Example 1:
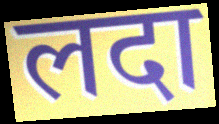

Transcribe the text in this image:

लदा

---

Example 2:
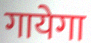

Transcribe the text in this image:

गायेगा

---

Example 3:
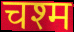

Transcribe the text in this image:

चश्म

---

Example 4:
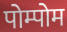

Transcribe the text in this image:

पोम्पोम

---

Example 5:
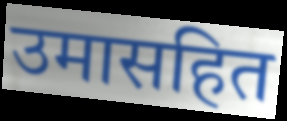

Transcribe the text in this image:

उमासहित